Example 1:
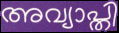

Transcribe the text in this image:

അവ്യാപ്തി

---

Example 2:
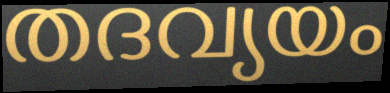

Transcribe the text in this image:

തദവ്യയം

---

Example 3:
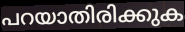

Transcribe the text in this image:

പറയാതിരിക്കുക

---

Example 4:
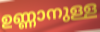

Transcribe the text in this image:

ഉണ്ണാനുള്ള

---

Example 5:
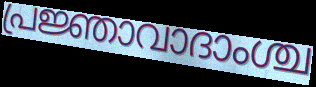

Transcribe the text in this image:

പ്രജ്ഞാവാദാംശ്ച